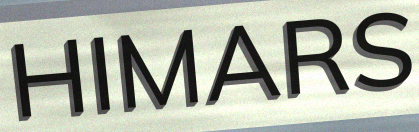
HIMARS